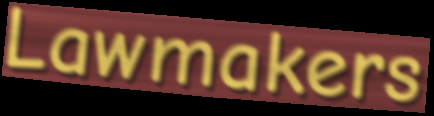
Lawmakers